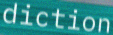
diction